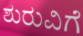
ಶುರುವಿಗೆ